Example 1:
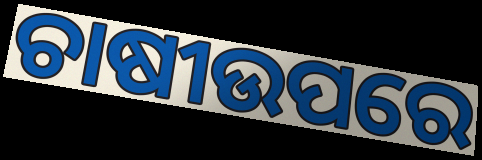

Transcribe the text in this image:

ଚାଷୀଉପରେ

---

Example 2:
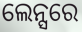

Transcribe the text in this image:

ଲେନ୍ସରେ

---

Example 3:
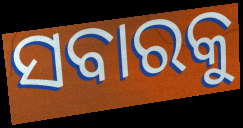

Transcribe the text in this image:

ସବାରକୁ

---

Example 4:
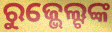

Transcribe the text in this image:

ରୁଜ୍ଭେଲ୍ଟଙ୍କ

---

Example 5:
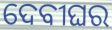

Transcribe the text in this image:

ଦେବୀଘର